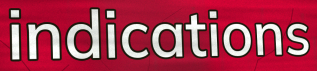
indications